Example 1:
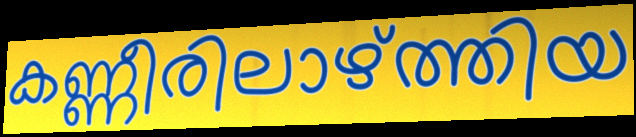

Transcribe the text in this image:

കണ്ണീരിലാഴ്ത്തിയ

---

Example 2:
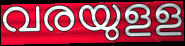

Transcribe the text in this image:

വരയുളള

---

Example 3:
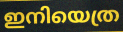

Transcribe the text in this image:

ഇനിയെത്ര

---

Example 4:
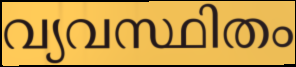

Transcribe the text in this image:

വ്യവസ്ഥിതം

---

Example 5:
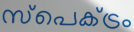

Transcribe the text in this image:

സ്പെക്ട്രം